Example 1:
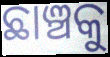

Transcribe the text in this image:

ଛାଞ୍ଚକୁ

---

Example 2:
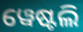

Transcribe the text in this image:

ୱେଷ୍ଟଲି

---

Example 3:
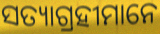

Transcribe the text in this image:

ସତ୍ୟାଗ୍ରହୀମାନେ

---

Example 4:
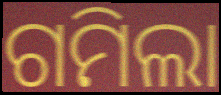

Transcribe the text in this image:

ଗମିଲା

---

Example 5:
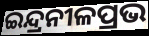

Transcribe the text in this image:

ଇନ୍ଦ୍ରନୀଳପ୍ରଭ